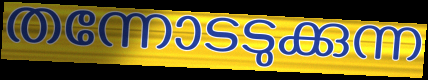
തന്നോടടുക്കുന്ന